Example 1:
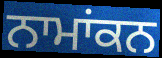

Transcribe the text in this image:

ਨਾਮਾਂਕਨ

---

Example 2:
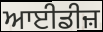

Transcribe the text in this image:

ਆਈਡੀਜ਼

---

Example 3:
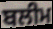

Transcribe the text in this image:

ਬਲੀਮ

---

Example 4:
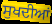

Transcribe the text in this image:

ਸੁਖਦੀਆਂ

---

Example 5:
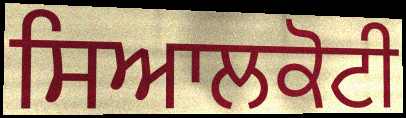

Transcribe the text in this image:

ਸਿਆਲਕੋਟੀ